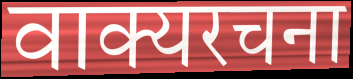
वाक्यरचना